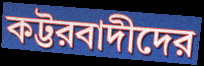
কট্টরবাদীদের